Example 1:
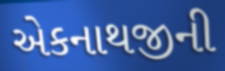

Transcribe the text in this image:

એકનાથજીની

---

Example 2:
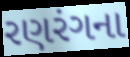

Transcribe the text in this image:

રણરંગના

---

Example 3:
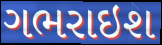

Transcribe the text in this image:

ગભરાઇશ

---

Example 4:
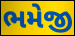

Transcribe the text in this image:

ભમેજી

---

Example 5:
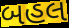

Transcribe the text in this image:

બહલ